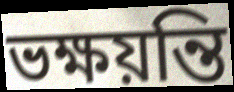
ভক্ষয়ন্তি